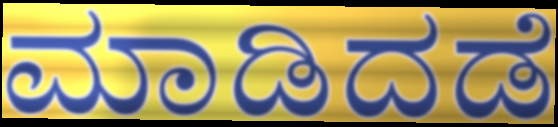
ಮಾಡಿದಡೆ